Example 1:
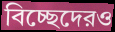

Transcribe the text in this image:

বিচ্ছেদেরও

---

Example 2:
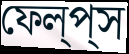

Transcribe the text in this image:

ফেল্‌প্‌স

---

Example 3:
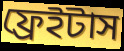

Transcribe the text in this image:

ফ্রেইটাস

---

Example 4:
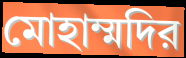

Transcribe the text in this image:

মোহাম্মদির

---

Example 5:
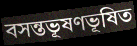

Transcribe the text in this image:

বসন্তভূষণভূষিত